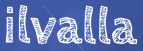
ilvalla